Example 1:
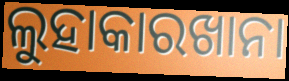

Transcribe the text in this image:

ଲୁହାକାରଖାନା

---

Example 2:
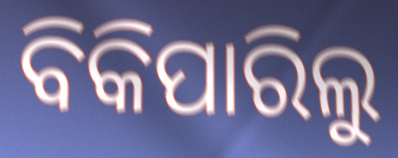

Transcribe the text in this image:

ବିକିପାରିଲୁ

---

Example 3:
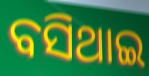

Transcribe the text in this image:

ବସିଥାଇ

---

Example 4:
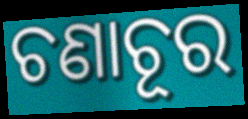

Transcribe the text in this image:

ଚଣାଚୂର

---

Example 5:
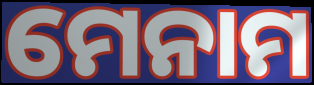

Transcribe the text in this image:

ମେନାମ